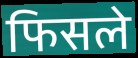
फिसले